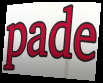
pade